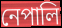
নেপালি